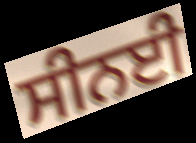
ਸੀਨਈ